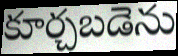
కూర్చబడెను